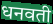
धनवती